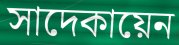
সাদেকায়েন